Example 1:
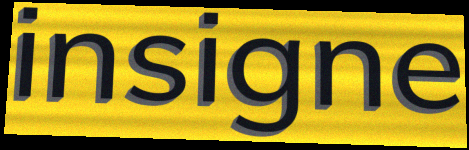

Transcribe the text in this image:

insigne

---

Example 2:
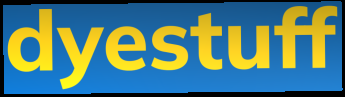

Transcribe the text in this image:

dyestuff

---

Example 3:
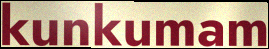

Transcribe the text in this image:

kunkumam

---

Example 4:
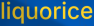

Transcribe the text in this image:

liquorice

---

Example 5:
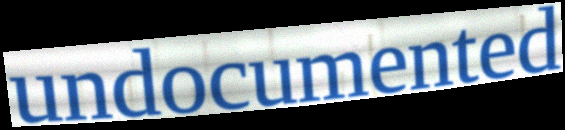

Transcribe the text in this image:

undocumented